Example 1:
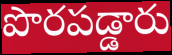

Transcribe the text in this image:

పొరపడ్డారు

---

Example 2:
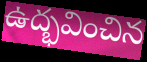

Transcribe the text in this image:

ఉద్భవించిన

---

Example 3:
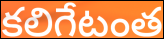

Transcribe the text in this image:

కలిగేటంత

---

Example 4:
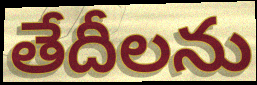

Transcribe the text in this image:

తేదీలను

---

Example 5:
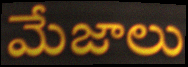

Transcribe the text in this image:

మేజాలు